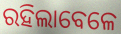
ରହିଲାବେଳେ